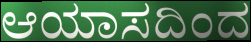
ಆಯಾಸದಿಂದ